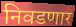
निवडणार